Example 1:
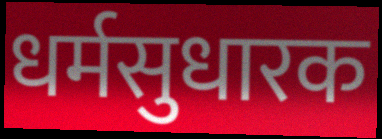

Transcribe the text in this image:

धर्मसुधारक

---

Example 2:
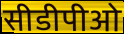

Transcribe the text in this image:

सीडीपीओ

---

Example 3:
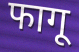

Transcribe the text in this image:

फागू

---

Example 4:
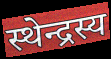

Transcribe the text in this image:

स्थेन्द्रस्य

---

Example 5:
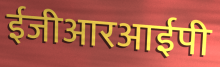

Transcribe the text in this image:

ईजीआरआईपी